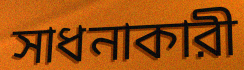
সাধনাকারী